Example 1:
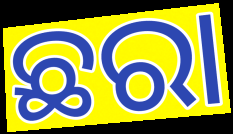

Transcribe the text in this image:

ଛରା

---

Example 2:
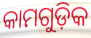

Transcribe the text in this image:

କାମଗୁଡ଼ିକ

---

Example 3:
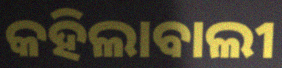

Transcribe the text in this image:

କହିଲାବାଲୀ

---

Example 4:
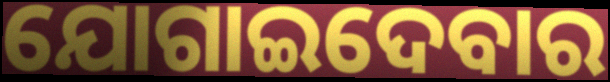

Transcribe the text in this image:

ଯୋଗାଇଦେବାର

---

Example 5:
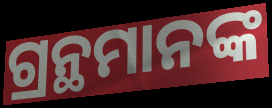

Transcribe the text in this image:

ଗ୍ରନ୍ଥମାନଙ୍କ